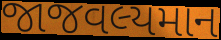
જાજવલ્યમાન